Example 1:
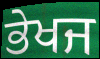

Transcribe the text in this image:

ਭੇਖਜ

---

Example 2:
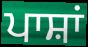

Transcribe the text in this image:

ਪਾਸ਼ਾਂ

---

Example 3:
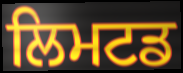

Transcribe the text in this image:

ਲਿਮਟਡ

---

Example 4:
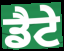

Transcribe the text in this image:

ਡੈਟੇ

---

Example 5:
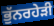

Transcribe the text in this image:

ਭੁੱਨਰਹੇੜੀ